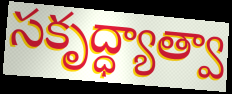
సకృద్ధ్యాత్వా